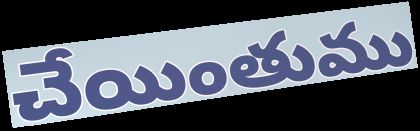
చేయింతుము